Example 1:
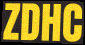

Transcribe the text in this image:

ZDHC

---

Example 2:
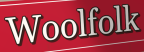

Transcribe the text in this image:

Woolfolk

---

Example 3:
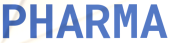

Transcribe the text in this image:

PHARMA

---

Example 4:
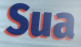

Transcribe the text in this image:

Sua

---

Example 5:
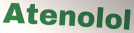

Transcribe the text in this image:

Atenolol